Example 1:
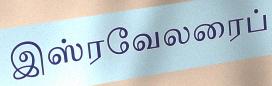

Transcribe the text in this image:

இஸ்ரவேலரைப்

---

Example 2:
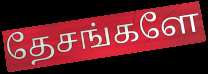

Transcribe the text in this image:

தேசங்களே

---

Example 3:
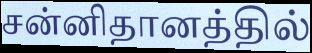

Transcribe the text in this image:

சன்னிதானத்தில்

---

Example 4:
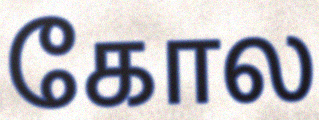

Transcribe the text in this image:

கோல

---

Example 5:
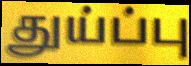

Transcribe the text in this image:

துய்ப்பு